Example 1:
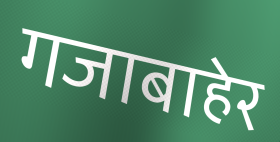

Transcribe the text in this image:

गजाबाहेर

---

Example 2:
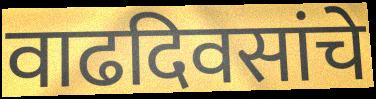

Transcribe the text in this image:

वाढदिवसांचे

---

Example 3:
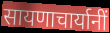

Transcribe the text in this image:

सायणाचार्यानीं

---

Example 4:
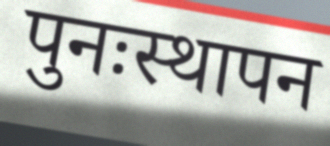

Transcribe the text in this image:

पुनःस्थापन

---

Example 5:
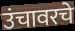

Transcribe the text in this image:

उंचावरचे